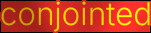
conjointed